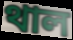
থাল